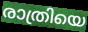
രാത്രിയെ